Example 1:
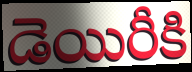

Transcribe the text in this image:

డెయిరీకి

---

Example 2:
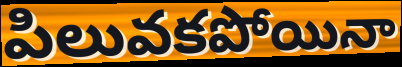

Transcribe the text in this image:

పిలువకపోయినా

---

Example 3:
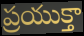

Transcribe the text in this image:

ప్రయుక్తా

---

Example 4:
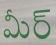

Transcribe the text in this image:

మీర్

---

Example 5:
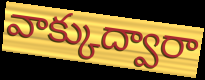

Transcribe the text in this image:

వాక్కుద్వారా